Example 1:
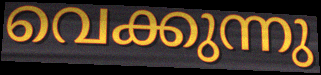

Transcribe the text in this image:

വെക്കുന്നു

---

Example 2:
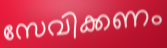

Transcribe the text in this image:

സേവിക്കണം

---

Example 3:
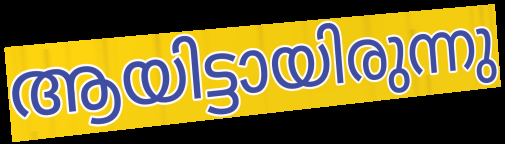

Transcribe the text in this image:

ആയിട്ടായിരുന്നു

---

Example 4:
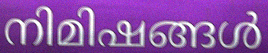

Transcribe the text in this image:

നിമിഷങ്ങൾ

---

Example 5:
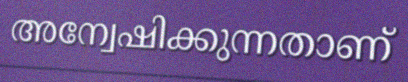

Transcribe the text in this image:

അന്വേഷിക്കുന്നതാണ്